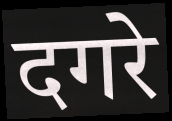
दगरे